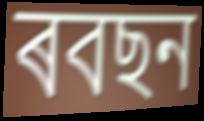
ৰবছন